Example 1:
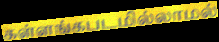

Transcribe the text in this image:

கள்ளங்கபடமில்லாமல்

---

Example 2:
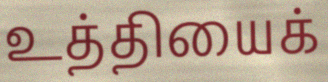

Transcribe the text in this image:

உத்தியைக்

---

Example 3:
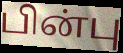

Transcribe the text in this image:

பின்பு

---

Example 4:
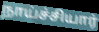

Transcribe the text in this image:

நாய்ச்சியார்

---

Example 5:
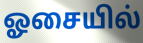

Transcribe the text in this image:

ஓசையில்